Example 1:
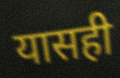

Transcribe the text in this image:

यासही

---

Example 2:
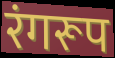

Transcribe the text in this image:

रंगरूप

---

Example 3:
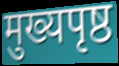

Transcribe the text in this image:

मुख्यपृष्ठ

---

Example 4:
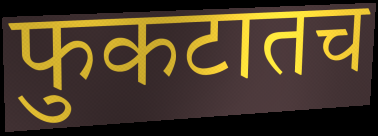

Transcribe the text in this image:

फुकटातच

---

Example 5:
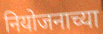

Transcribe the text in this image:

नियोजनाच्या